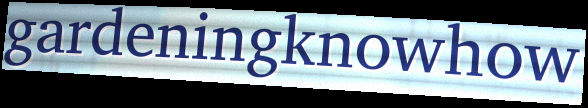
gardeningknowhow